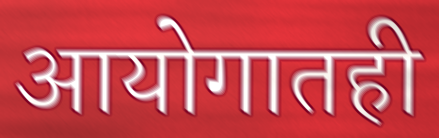
आयोगातही